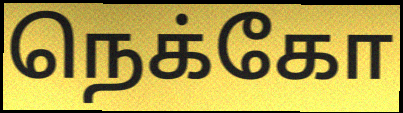
நெக்கோ